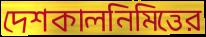
দেশকালনিমিত্তের